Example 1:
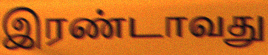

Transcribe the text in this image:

இரண்டாவது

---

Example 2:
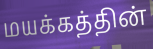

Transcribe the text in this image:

மயக்கத்தின்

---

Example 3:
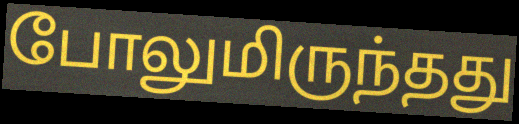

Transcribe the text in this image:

போலுமிருந்தது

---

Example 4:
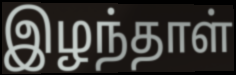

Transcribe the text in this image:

இழந்தாள்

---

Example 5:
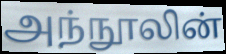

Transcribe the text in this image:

அந்நூலின்